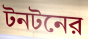
টনটনের